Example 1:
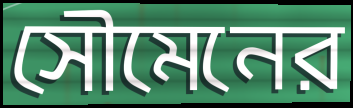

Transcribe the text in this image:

সৌমেনের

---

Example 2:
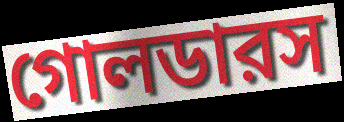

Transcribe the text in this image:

গোলডারস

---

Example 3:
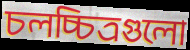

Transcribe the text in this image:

চলচ্চিত্রগুলো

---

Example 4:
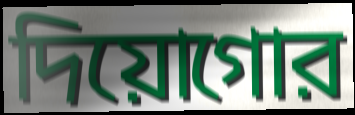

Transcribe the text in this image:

দিয়োগোর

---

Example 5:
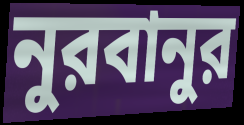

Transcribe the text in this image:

নুরবানুর